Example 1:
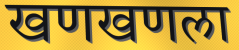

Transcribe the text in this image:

खणखणला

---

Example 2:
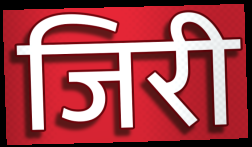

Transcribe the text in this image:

जिरी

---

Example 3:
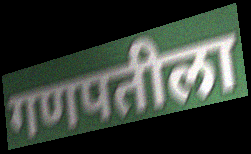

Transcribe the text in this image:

गणपतीला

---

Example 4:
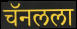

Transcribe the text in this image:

चॅनलला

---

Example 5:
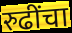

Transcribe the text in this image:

रुढींचा